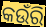
କଉଁରି